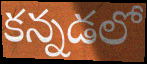
కన్నడలో